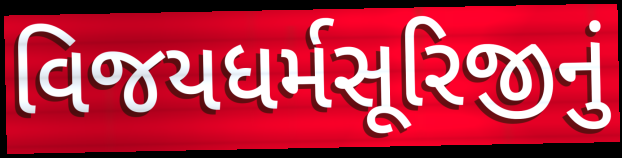
વિજયધર્મસૂરિજીનું